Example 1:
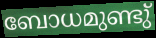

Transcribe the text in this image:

ബോധമുണ്ടു്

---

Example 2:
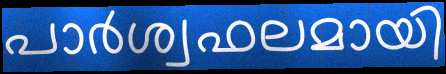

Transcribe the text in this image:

പാർശ്വഫലമായി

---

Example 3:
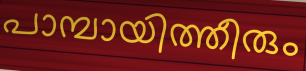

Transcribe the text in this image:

പാമ്പായിത്തീരും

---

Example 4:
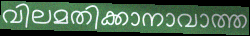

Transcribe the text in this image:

വിലമതിക്കാനാവാത്ത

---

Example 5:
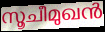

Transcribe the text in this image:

സൂചീമുഖൻ